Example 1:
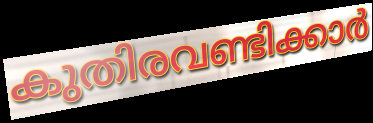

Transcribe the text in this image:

കുതിരവണ്ടിക്കാർ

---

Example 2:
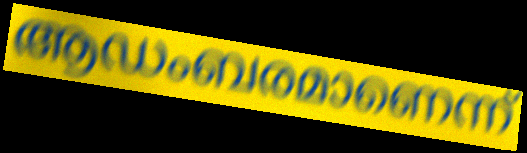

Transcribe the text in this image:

ആഡംബരമാണെന്ന്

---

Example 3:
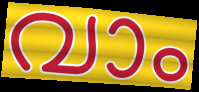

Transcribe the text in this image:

വാം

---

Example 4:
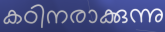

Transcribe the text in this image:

കഠിനരാക്കുന്നു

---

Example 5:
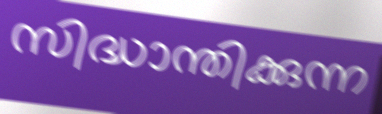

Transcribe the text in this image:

സിദ്ധാന്തിക്കുന്ന